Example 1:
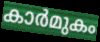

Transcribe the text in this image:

കാർമുകം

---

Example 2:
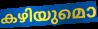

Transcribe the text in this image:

കഴിയുമൊ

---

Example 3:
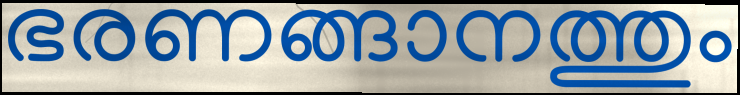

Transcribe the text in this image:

ഭരണങ്ങാനത്തും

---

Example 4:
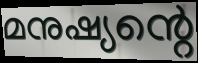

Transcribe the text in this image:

മനുഷ്യന്റെ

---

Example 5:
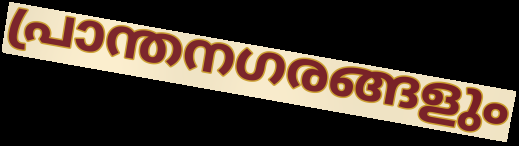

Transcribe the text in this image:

പ്രാന്തനഗരങ്ങളും